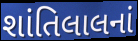
શાંતિલાલનાં